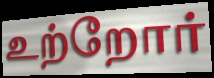
உற்றோர்